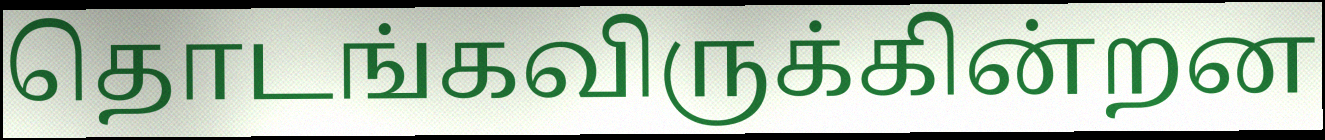
தொடங்கவிருக்கின்றன